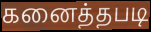
கனைத்தபடி